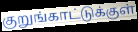
குறுங்காட்டுக்குள்